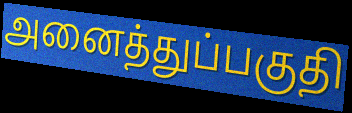
அனைத்துப்பகுதி